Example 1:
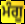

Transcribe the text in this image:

ਮੰਗੂ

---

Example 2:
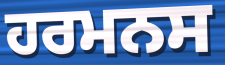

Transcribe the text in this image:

ਹਰਮਨਸ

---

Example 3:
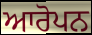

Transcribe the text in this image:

ਆਰੋਪਨ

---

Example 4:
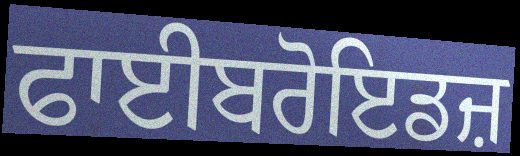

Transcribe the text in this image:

ਫਾਈਬਰੋਇਡਜ਼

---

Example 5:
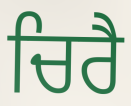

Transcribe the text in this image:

ਚਿਰੈ